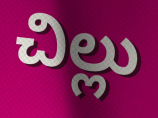
చిల్లు